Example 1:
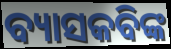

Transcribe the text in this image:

ବ୍ୟାସକବିଙ୍କ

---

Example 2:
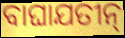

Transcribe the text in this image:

ବାଘାଯତୀନ୍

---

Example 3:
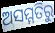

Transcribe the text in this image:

ଅସମ୍ମତିରୁ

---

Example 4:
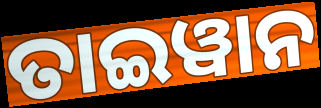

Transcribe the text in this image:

ତାଇୱାନ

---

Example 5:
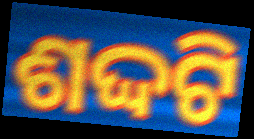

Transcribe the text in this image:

ଶଦ୍ଦଟି